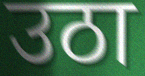
उठा